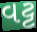
વટ્ટ